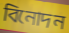
বিনোদন